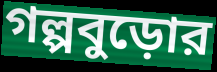
গল্পবুড়োর